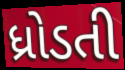
ધ્રોડતી